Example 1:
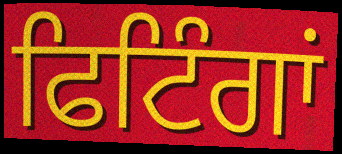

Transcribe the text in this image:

ਫਿਟਿੰਗਾਂ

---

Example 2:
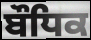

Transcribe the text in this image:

ਬੌਧਿਕ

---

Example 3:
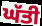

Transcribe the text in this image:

ਘੱਤੀ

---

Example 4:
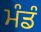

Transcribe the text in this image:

ਮੰਡੰ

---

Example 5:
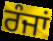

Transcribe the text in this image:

ਰੰਜਾਂ